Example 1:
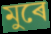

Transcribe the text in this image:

মুৰে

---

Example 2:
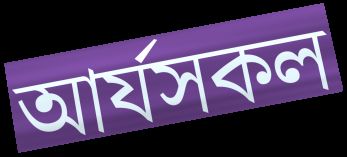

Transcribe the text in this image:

আৰ্যসকল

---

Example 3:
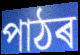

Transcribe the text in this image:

পাঠৰ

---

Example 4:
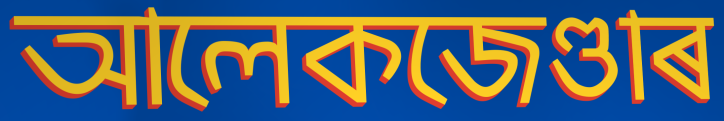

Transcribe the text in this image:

আলেকজেণ্ডাৰ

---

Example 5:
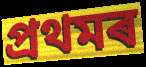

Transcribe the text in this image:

প্ৰথমৰ